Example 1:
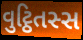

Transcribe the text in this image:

વુટ્ઠિતસ્સ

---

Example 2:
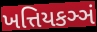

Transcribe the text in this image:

ખત્તિયકઞ્ઞં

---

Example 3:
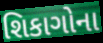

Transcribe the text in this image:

શિકાગોના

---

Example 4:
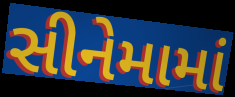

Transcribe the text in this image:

સીનેમામાં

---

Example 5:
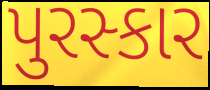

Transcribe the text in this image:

પુરસ્કાર